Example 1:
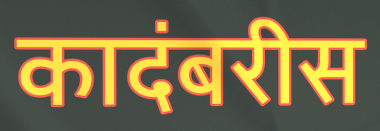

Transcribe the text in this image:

कादंबरीस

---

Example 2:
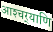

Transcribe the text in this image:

आश्चर्याणि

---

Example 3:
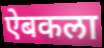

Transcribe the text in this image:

ऐबकला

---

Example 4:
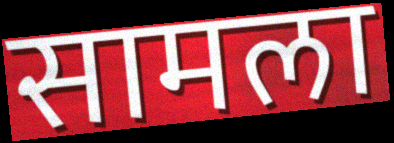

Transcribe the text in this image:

सामला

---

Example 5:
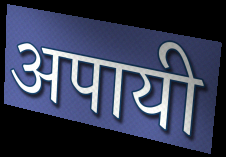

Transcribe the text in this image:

अपायी